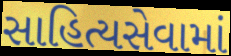
સાહિત્યસેવામાં